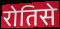
रोतिसे